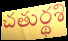
చతుర్థశి